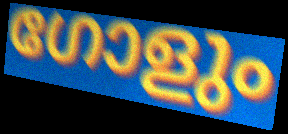
ഗോളും